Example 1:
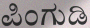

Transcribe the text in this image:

ಪಿಂಗುಡಿ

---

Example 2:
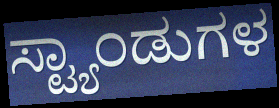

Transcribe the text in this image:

ಸ್ಟ್ಯಾಂಡುಗಳ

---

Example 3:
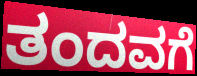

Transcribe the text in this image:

ತಂದವಗೆ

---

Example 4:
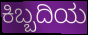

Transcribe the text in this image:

ಕಿಬ್ಬದಿಯ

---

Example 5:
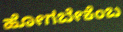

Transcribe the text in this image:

ಹೋಗಬೇಕೆಂಬ